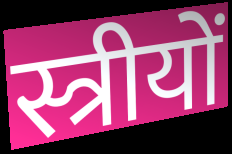
स्त्रीयों